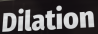
Dilation